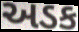
અડક